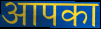
आपका